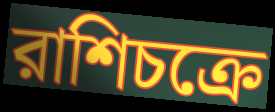
রাশিচক্রে